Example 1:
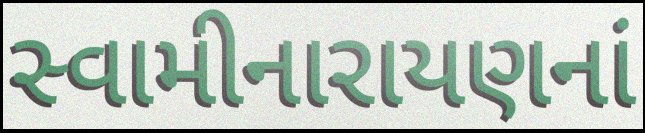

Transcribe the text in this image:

સ્વામીનારાયણનાં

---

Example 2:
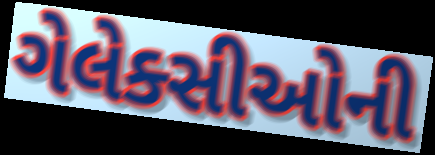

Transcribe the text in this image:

ગેલેક્સીઓની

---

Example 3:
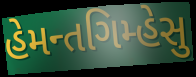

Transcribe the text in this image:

હેમન્તગિમ્હેસુ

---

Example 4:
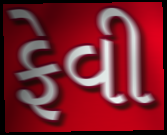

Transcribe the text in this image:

ફેવી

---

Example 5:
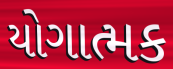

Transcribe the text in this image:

યોગાત્મક